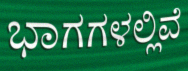
ಭಾಗಗಳಲ್ಲಿವೆ